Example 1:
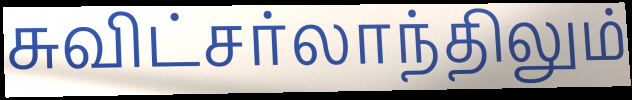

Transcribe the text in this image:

சுவிட்சர்லாந்திலும்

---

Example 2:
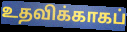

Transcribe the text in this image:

உதவிக்காகப்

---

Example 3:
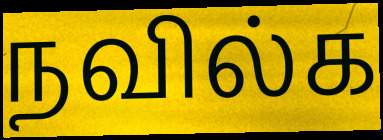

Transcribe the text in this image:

நவில்க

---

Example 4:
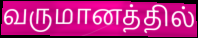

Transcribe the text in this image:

வருமானத்தில்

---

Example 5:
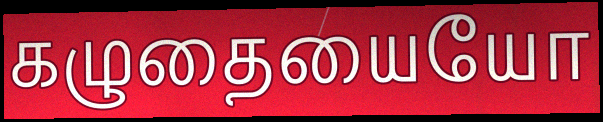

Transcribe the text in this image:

கழுதையையோ